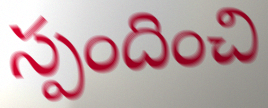
స్పందించి